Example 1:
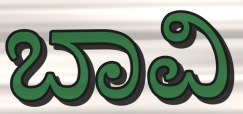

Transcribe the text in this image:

ಬಾವಿ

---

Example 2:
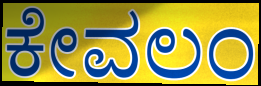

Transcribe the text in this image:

ಕೇವಲಂ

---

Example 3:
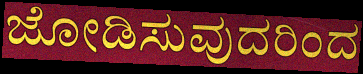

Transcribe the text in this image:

ಜೋಡಿಸುವುದರಿಂದ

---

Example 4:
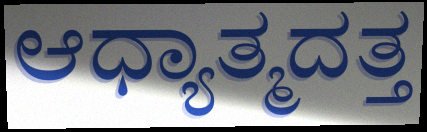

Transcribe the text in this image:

ಆಧ್ಯಾತ್ಮದತ್ತ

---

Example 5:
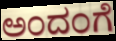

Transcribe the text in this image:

ಅಂದಂಗೆ